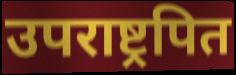
उपराष्ट्रपित